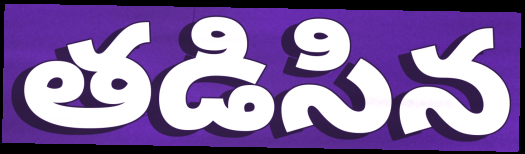
తడిసిన